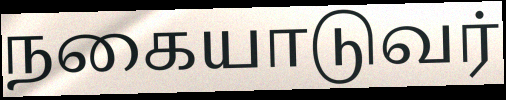
நகையாடுவர்